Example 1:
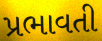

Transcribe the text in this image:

પ્રભાવતી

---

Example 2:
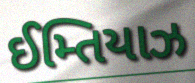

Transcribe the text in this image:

ઈમ્તિયાઝ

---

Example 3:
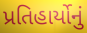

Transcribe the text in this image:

પ્રતિહાર્યોનું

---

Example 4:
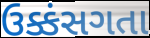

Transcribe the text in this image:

ઉક્કંસગતા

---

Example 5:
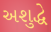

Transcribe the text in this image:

અશુદ્ધે